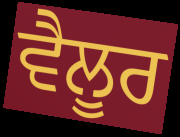
ਵੈਲੂਰ